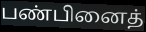
பண்பினைத்